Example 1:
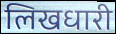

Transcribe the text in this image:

लिखधारी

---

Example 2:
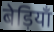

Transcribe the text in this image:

बेड़ियाँ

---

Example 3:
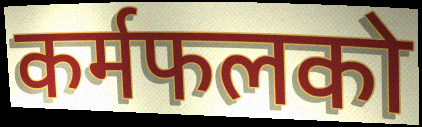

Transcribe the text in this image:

कर्मफलको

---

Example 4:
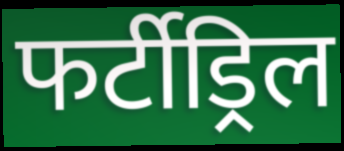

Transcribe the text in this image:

फर्टीड्रिल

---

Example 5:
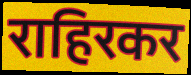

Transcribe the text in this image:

राहिरकर